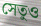
সেতুও